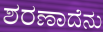
ಶರಣಾದೆನು